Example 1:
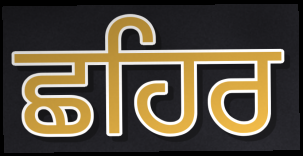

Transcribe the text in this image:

ਛਹਿਰ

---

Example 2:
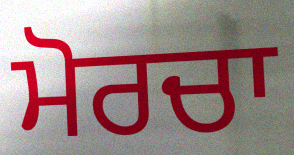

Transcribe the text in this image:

ਮੋਰਚਾ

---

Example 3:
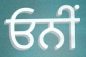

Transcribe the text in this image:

ਓਨੀਂ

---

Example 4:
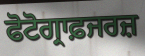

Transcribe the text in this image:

ਫੋਟੋਗ੍ਰਾਫ਼ਜਰਜ਼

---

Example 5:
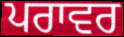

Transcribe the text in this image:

ਪਰਾਵਰ